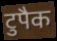
टुपैक